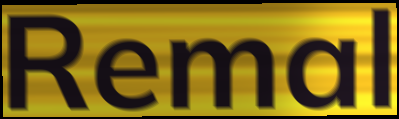
Remal